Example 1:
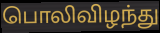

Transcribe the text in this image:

பொலிவிழந்து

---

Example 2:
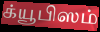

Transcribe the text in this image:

க்யூபிஸம்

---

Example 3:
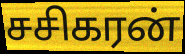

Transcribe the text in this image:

சசிகரன்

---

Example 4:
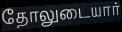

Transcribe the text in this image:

தோலுடையார்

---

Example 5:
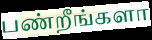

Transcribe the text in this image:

பண்றீங்களா